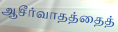
ஆசீர்வாதத்தைத்